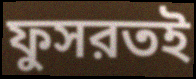
ফুসরতই